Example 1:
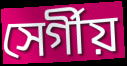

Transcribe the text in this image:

সের্গীয়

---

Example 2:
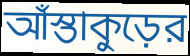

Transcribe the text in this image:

আঁস্তাকুড়ের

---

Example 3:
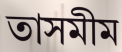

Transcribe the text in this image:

তাসমীম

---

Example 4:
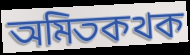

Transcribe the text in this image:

অমিতকথক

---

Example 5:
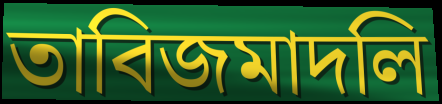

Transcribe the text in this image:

তাবিজমাদলি